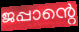
ജപ്പാന്റെ